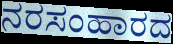
ನರಸಂಹಾರದ